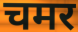
चमर